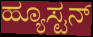
ಹ್ಯೂಸ್ಟನ್